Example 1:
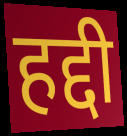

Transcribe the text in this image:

हद्दी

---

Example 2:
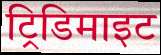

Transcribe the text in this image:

ट्रिडिमाइट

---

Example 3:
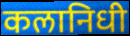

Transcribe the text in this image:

कलानिधी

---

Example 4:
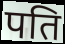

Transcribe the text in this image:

पति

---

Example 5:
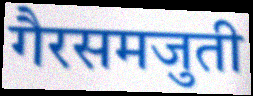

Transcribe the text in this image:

गैरसमजुती